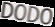
DODO